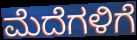
ಮೆದೆಗಳಿಗೆ